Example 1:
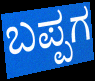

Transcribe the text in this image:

ಬಪ್ಪಗ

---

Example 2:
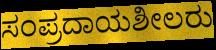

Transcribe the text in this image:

ಸಂಪ್ರದಾಯಶೀಲರು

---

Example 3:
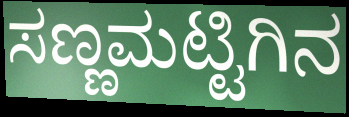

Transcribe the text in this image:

ಸಣ್ಣಮಟ್ಟಿಗಿನ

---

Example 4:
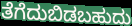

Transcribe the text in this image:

ತೆಗೆದುಬಿಡಬಹುದು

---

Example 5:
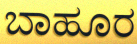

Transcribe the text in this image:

ಬಾಹೂರ